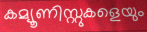
കമ്യൂണിസ്റ്റുകളെയും